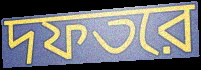
দফতরে